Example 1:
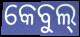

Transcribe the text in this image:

କେବୁଲ୍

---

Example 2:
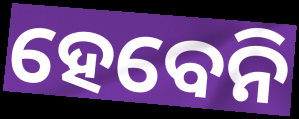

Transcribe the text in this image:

ହେବେନି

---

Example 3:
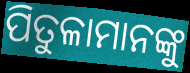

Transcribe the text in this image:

ପିତୁଳାମାନଙ୍କୁ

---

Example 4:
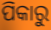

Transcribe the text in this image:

ପିକାରୁ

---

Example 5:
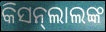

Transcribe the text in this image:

କିସନ୍‌ଲାଲଙ୍କ